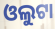
ଓଲୁଟା